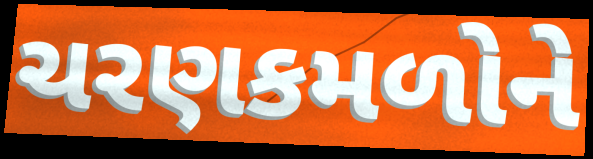
ચરણકમળોને